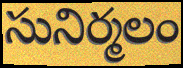
సునిర్మలం